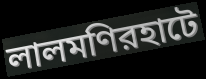
লালমণিরহাটে